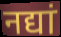
नद्यां